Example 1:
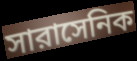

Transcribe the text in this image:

সারাসেনিক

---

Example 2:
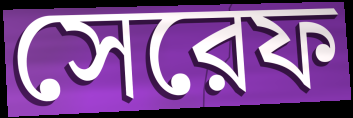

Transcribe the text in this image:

সেরেফ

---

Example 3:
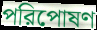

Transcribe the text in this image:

পরিপোষণ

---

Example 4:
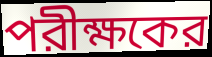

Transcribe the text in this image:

পরীক্ষকের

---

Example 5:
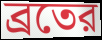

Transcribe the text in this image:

ব্রতের